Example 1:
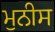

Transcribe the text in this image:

ਮੁਨੀਸ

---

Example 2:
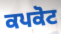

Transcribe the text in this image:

ਕਪਕੋਟ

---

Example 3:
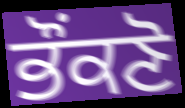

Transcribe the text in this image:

ਭੌਂਕਣੋ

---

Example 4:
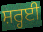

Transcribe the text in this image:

ਸ਼ਰ੍ਹਈ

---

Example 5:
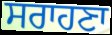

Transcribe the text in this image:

ਸਰਾਹਣਾ